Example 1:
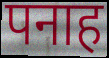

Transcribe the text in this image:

पनाह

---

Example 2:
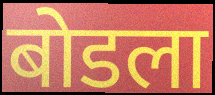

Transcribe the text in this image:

बोडला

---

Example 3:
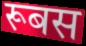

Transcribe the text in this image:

रूबस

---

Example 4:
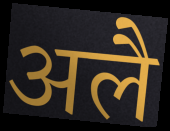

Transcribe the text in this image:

अलै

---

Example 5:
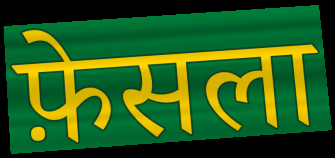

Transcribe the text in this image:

फ़ेसला